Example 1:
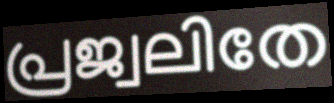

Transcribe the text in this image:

പ്രജ്വലിതേ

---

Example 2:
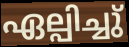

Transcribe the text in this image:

ഏല്പിച്ചു്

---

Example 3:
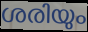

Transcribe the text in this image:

ശരിയും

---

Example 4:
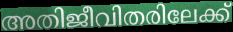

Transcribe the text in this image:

അതിജീവിതരിലേക്ക്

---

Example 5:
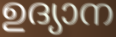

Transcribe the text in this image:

ഉദ്യാന